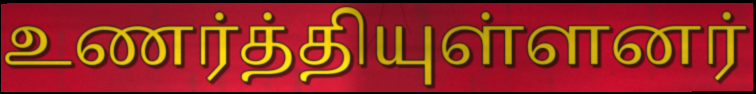
உணர்த்தியுள்ளனர்